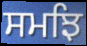
ਸਮਝਿ